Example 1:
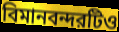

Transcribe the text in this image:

বিমানবন্দরটিও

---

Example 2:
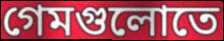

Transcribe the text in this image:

গেমগুলোতে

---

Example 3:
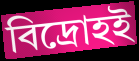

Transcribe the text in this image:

বিদ্রোহই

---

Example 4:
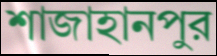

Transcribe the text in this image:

শাজাহানপুর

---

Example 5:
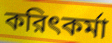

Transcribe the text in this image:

করিৎকর্মা